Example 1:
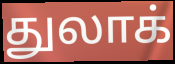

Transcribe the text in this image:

துலாக்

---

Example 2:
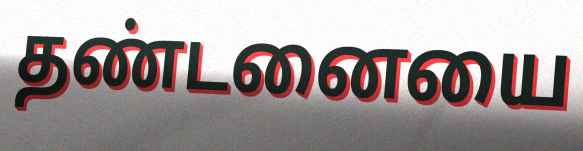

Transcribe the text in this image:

தண்டனையை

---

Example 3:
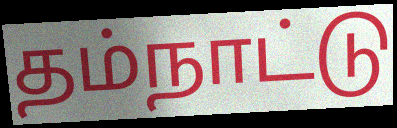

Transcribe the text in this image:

தம்நாட்டு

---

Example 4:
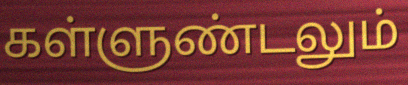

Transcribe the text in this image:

கள்ளுண்டலும்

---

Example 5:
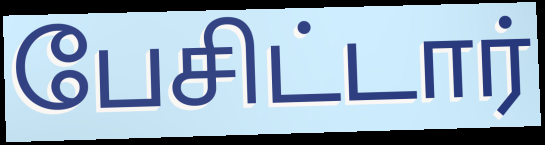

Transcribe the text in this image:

பேசிட்டார்